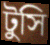
টুসি